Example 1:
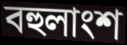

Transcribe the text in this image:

বহুলাংশ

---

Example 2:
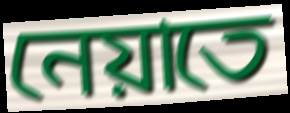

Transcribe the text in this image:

নেয়াতে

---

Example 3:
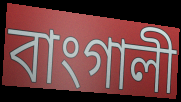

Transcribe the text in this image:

বাংগালী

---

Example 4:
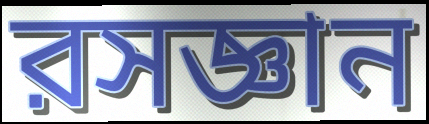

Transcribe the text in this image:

রসজ্ঞান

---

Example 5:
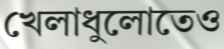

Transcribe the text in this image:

খেলাধুলোতেও